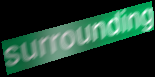
surrounding